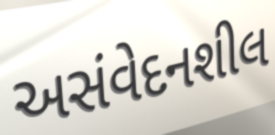
અસંવેદનશીલ